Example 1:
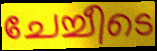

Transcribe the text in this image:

ചേച്ചീടെ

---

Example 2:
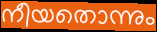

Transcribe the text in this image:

നീയതൊന്നും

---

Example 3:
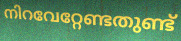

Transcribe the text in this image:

നിറവേറ്റേണ്ടതുണ്ട്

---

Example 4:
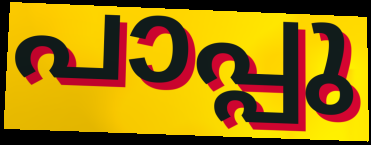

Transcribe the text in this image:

പാപ്പു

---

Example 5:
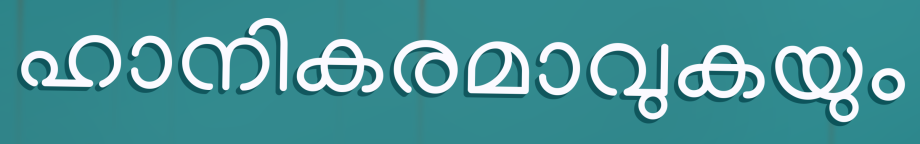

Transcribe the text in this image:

ഹാനികരമാവുകയും